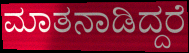
ಮಾತನಾಡಿದ್ದರೆ